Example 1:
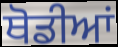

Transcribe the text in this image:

ਥੋਡੀਆਂ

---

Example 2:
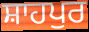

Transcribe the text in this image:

ਸ਼ਾਹਪੁਰ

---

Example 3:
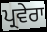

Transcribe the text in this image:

ਪ੍ਰਵੇਰਾ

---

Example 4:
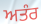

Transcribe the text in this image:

ਅਤੰਰ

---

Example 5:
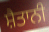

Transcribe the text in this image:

ਸ਼ੈਤਾਨੀ